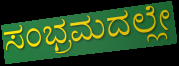
ಸಂಭ್ರಮದಲ್ಲೇ